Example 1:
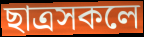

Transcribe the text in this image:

ছাত্ৰসকলে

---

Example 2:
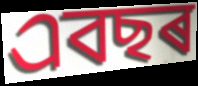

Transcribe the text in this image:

এবছৰ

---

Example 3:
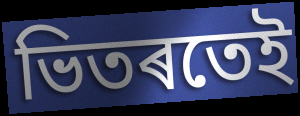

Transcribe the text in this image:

ভিতৰতেই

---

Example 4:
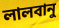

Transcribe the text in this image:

লালবানু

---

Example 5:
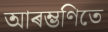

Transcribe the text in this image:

আৰম্ভণিতে